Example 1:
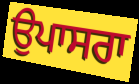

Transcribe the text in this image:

ਉਪਾਸਰਾ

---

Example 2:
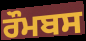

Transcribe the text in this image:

ਰੌਮਬਸ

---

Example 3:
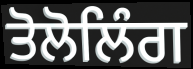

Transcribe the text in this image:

ਤੋਲੋਲਿੰਗ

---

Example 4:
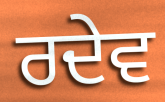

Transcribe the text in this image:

ਰਦੇਵ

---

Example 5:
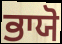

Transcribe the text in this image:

ਭਾਯੋ